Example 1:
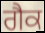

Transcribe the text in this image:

ਗੈਕ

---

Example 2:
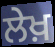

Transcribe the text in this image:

ਲੇਖ਼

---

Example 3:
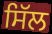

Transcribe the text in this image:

ਸਿੱਲ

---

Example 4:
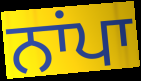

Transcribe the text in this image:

ਨਾਂਪਾ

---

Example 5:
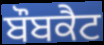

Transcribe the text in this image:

ਬੌਬਕੈਟ